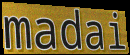
madai